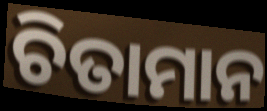
ଚିତାମାନ